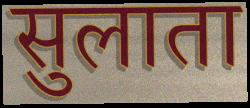
सुलाता